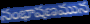
సంభాషణమున